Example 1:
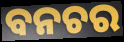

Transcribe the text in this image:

ବନଚର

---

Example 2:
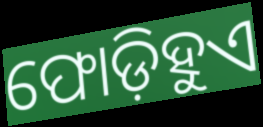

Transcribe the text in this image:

ଫୋଡ଼ିହୁଏ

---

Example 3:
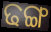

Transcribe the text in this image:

ଢଙ୍ଗ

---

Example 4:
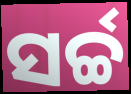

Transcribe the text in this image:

ସର୍ଚ୍ଚ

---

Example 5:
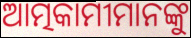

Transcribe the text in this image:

ଆତ୍ମକାମୀମାନଙ୍କୁ